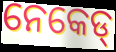
ନେକେଡ୍